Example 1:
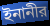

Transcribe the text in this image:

ইনানীর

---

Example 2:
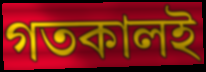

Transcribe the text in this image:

গতকালই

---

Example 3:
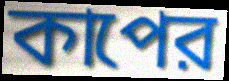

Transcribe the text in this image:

কাপের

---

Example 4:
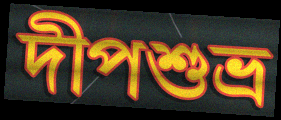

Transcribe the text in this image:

দীপশুভ্র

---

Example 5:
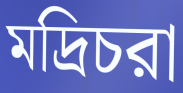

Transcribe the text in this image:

মদ্রিচরা